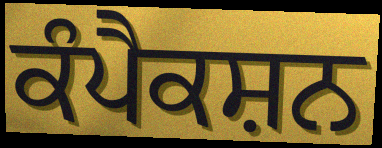
ਕੰਪੈਕਸ਼ਨ